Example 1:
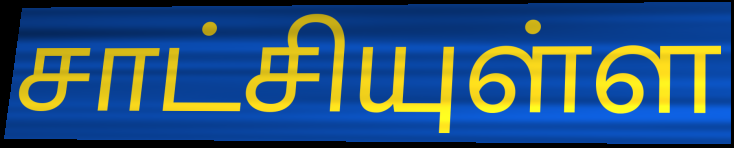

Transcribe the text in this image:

சாட்சியுள்ள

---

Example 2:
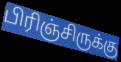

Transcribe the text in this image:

பிரிஞ்சிருக்கு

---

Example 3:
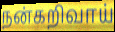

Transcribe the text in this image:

நன்கறிவாய்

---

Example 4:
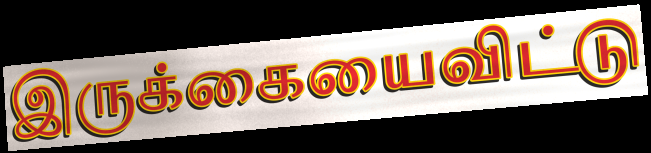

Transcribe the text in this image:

இருக்கையைவிட்டு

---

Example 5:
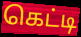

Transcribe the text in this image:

கெட்டி